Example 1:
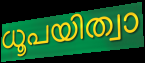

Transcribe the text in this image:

ധൂപയിത്വാ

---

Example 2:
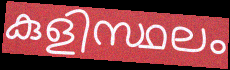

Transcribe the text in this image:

കുളിസ്ഥലം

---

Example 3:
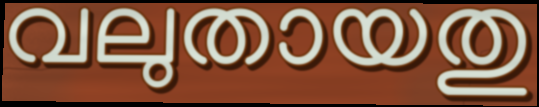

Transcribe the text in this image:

വലുതായതു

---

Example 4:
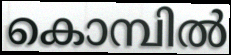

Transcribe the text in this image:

കൊമ്പിൽ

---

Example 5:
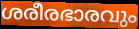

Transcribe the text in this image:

ശരീരഭാരവും